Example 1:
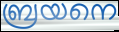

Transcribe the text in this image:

ബ്രയനെ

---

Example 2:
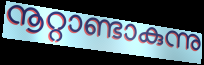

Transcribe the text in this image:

നൂറ്റാണ്ടാകുന്നു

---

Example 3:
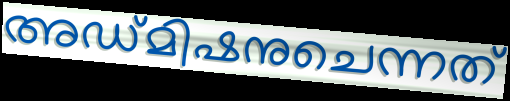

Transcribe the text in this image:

അഡ്മിഷനുചെന്നത്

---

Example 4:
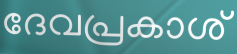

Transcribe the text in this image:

ദേവപ്രകാശ്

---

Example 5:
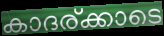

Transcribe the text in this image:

കാദര്ക്കാടെ